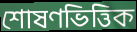
শোষণভিত্তিক